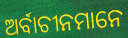
ଅର୍ବାଚୀନମାନେ